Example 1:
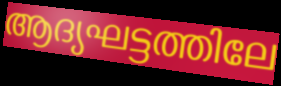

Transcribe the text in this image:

ആദ്യഘട്ടത്തിലേ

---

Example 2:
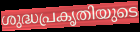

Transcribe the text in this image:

ശുദ്ധപ്രകൃതിയുടെ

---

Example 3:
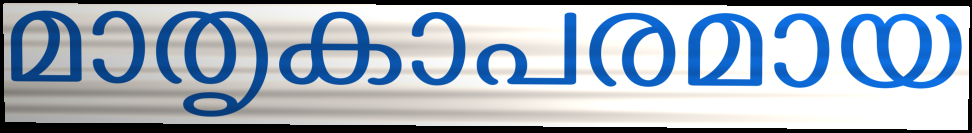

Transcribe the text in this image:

മാതൃകാപരമായ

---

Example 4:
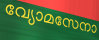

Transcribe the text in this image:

വ്യോമസേനാ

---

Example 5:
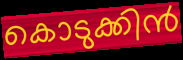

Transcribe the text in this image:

കൊടുക്കിൻ